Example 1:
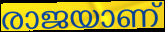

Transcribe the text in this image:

രാജയാണ്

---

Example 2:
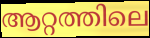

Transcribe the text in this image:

ആറ്റത്തിലെ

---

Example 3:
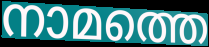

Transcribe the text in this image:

നാമത്തെ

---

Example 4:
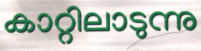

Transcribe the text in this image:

കാറ്റിലാടുന്നു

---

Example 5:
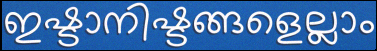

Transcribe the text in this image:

ഇഷ്ടാനിഷ്ടങ്ങളെല്ലാം